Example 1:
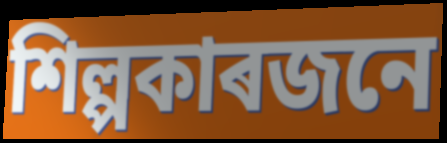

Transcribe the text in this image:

শিল্পকাৰজনে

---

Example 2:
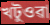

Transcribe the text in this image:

খটুওৱা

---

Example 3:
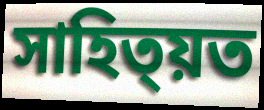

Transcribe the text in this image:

সাহিত্য়ত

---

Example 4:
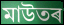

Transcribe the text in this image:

মাউতৰ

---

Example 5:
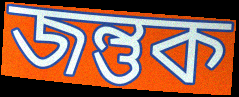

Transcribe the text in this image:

জন্তুক